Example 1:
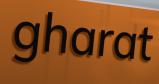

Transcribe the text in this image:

gharat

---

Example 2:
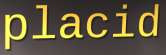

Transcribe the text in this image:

placid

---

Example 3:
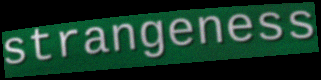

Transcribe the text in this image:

strangeness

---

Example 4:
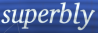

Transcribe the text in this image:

superbly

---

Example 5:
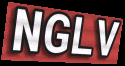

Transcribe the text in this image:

NGLV